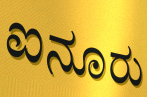
ಐನೂರು